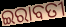
ଇରାବତୀ